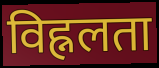
विह्नलता